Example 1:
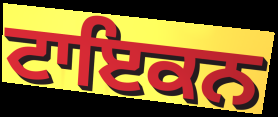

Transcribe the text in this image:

ਟਾਇਕਨ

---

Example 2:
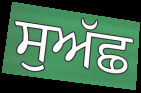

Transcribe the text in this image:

ਸੁਅੱਛ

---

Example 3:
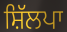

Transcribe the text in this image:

ਸ਼ਿੱਲਪਾ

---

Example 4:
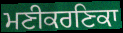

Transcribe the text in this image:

ਮਣੀਕਰਣਿਕਾ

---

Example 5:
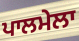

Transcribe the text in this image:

ਪਾਲਮੇਲਾ